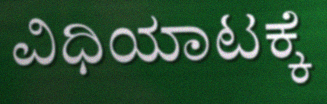
ವಿಧಿಯಾಟಕ್ಕೆ